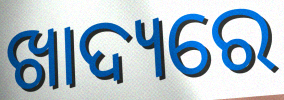
ଖାଦ୍ୟରେ